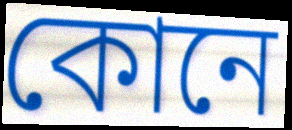
কোনে